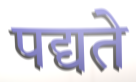
पद्यते